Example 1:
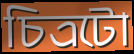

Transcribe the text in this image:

চিত্ৰটো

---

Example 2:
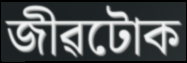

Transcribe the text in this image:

জীৱটোক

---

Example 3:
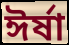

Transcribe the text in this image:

ঈৰ্ষা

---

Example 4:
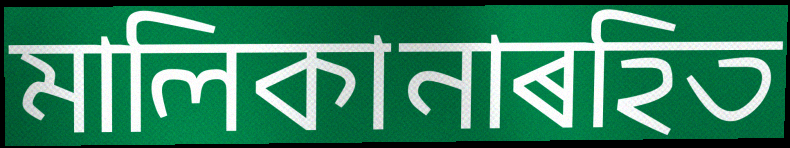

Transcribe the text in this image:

মালিকানাৰহিত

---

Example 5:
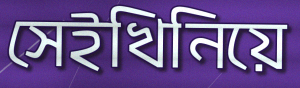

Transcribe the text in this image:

সেইখিনিয়ে